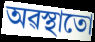
অৱস্থাতো